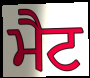
ਮੈਟ